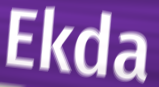
Ekda